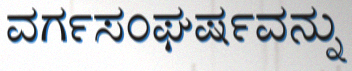
ವರ್ಗಸಂಘರ್ಷವನ್ನು